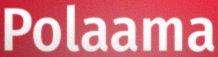
Polaama